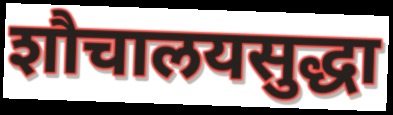
शौचालयसुद्धा